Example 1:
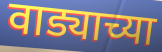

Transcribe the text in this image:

वाड्याच्या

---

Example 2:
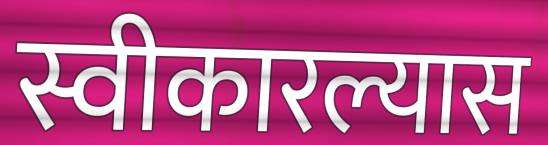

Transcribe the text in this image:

स्वीकारल्यास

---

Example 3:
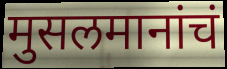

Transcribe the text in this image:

मुसलमानांचं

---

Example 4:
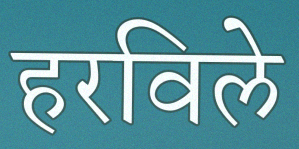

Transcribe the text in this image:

हरविले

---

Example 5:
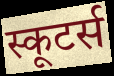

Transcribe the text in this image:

स्कूटर्स